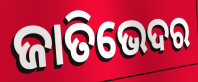
ଜାତିଭେଦର